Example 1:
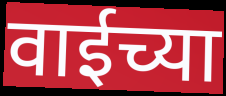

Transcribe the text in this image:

वाईच्या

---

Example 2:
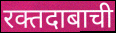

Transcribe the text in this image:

रक्तदाबाची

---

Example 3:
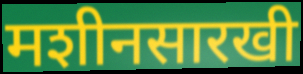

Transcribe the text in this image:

मशीनसारखी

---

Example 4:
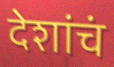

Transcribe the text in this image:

देशांचं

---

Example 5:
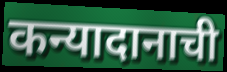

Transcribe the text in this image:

कन्यादानाची